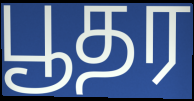
பூதர